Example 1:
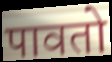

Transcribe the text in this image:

पावतो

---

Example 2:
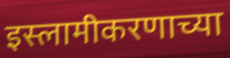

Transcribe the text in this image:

इस्लामीकरणाच्या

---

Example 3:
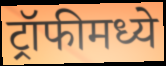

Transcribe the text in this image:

ट्रॉफीमध्ये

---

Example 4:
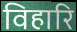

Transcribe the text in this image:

विहारि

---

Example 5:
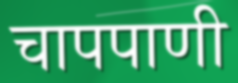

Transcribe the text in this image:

चापपाणी